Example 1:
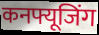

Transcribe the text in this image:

कनफ्यूजिंग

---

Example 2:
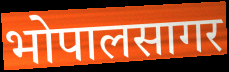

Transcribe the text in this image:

भोपालसागर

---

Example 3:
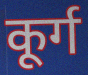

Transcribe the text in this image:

कूर्ग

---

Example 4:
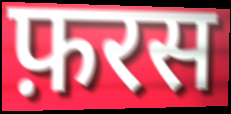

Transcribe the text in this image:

फ़रस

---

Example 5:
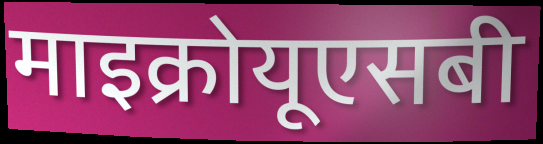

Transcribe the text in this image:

माइक्रोयूएसबी